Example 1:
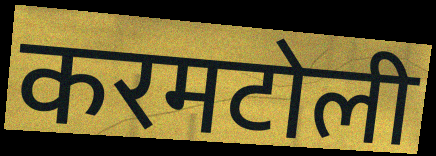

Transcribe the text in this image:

करमटोली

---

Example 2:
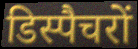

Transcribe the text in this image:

डिस्पैचरों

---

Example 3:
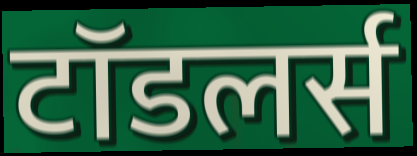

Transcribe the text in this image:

टॉडलर्स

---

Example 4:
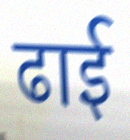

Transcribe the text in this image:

ढाई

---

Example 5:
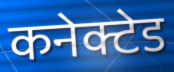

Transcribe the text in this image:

कनेक्टेड